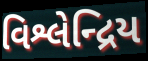
વિશ્લેન્દ્રિય